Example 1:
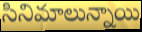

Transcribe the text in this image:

సినిమాలున్నాయి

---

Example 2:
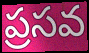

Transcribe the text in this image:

ప్రసవ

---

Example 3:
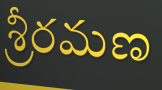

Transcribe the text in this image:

శ్రీరమణ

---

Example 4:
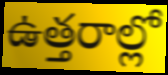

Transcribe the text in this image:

ఉత్తరాల్లో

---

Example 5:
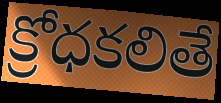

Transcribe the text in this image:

క్రోధకలితే